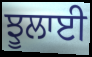
ਝੂਲਾਈ